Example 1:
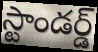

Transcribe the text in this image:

స్టాండర్డ్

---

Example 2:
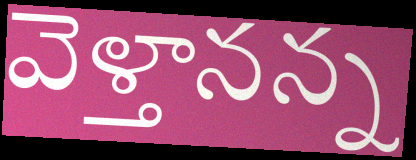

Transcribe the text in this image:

వెళ్తానన్న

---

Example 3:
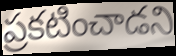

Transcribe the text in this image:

ప్రకటించాడని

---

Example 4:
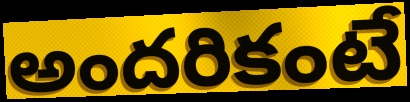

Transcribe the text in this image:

అందరికంటే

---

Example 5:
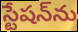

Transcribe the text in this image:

స్టేషన్‌ను